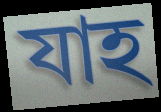
যাহ